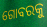
ଗୋବରକୁ